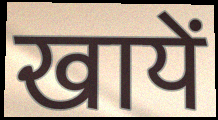
खायें